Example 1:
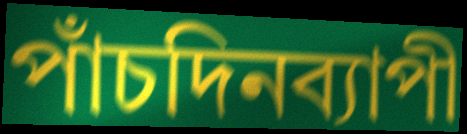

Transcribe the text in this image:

পাঁচদিনব্যাপী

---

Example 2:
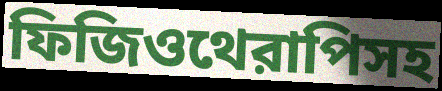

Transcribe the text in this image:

ফিজিওথেরাপিসহ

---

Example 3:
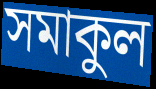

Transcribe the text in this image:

সমাকুল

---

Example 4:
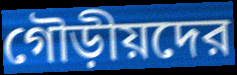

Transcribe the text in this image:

গৌড়ীয়দের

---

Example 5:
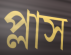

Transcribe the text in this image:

প্লাস